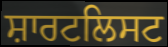
ਸ਼ਾਰਟਲਿਸਟ